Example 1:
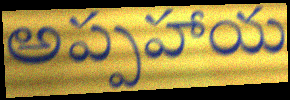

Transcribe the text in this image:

అప్పహాయ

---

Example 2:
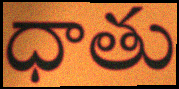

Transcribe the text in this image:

ధాతు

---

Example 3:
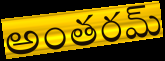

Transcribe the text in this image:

అంతరమ్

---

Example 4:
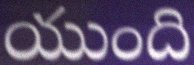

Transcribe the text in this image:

యుంది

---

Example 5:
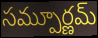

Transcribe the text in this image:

సమ్పూర్ణమ్